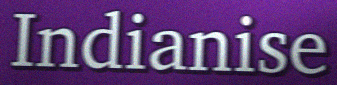
Indianise